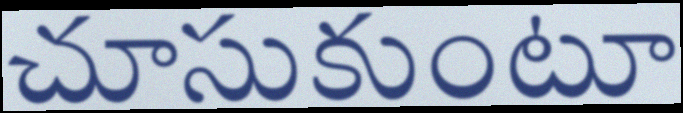
చూసుకుంటూ